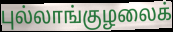
புல்லாங்குழலைக்